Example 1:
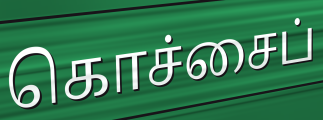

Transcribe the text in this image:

கொச்சைப்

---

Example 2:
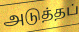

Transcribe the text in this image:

அடுத்தப்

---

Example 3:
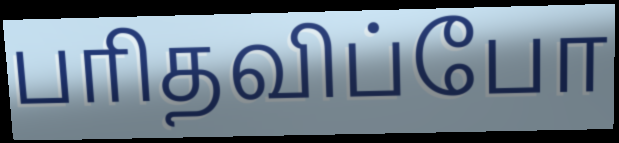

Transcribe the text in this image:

பரிதவிப்போ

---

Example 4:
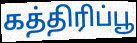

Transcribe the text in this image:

கத்திரிப்பூ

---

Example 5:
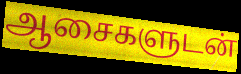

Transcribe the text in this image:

ஆசைகளுடன்